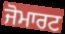
ਜੋਮਾਰਟ